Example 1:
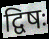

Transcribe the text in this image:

द्विषः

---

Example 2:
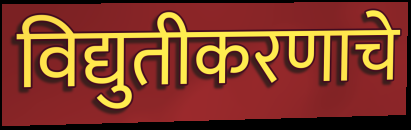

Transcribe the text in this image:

विद्युतीकरणाचे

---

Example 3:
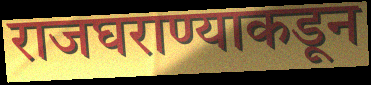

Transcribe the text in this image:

राजघराण्याकडून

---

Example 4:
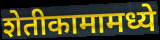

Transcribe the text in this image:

शेतीकामामध्ये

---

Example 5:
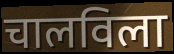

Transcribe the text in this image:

चालविला